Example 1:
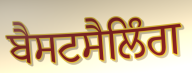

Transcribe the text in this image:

ਬੈਸਟਸੈਲਿੰਗ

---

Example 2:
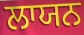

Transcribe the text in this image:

ਲਾਯਨ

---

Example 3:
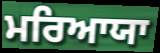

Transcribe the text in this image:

ਮਰਿਆਯਾ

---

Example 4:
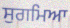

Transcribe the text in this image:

ਸੁਗਮਿਆ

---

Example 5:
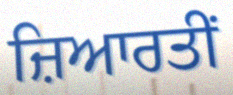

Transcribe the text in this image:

ਜ਼ਿਆਰਤੀਂ